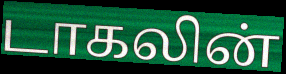
டாகலின்